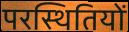
परस्थितियों